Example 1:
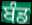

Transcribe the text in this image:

ਬੰਡ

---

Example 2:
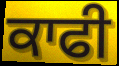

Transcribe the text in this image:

ਕਾਫੀ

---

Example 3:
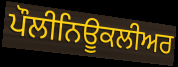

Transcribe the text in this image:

ਪੌਲੀਨਿਊਕਲੀਅਰ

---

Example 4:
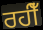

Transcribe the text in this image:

ਰਹੀਁ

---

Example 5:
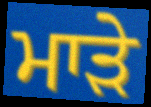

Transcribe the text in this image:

ਮਾੜੇ